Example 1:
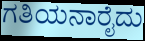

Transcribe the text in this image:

ಗತಿಯನಾರೈದು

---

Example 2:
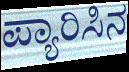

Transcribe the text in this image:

ಪ್ಯಾರಿಸಿನ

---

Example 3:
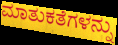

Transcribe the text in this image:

ಮಾತುಕತೆಗಳನ್ನು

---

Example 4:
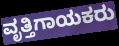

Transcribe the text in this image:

ವೃತ್ತಿಗಾಯಕರು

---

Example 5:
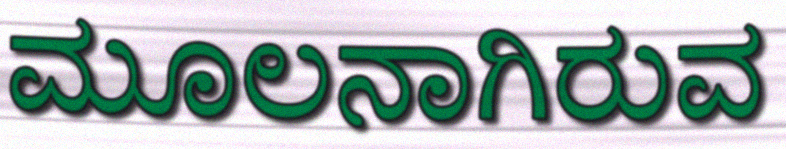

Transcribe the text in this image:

ಮೂಲನಾಗಿರುವ